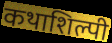
कथाशिल्पी